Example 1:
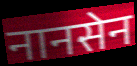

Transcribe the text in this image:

नानसेन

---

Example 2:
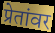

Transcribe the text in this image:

प्रेतांवर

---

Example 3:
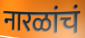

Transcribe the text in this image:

नारळांचं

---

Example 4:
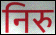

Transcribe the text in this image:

निरु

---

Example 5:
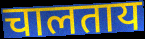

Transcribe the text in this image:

चालताय